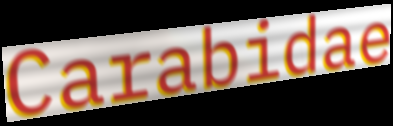
Carabidae